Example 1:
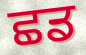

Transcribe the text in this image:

ਛਡ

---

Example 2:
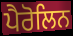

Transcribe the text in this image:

ਪੈਰੋਲਿਨ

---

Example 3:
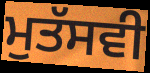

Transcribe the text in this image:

ਮੁਤੱਸਵੀ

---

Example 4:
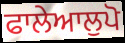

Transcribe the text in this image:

ਫਾਲੇਆਲੁਪੋ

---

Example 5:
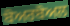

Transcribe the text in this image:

ਬੋਅਰਬੋਅਲ